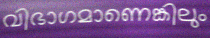
വിഭാഗമാണെങ്കിലും